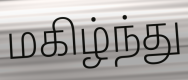
மகிழ்ந்து